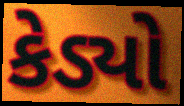
કેડ્યો